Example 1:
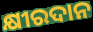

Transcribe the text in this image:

କ୍ଷୀରଦାନ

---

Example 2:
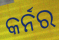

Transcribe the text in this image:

କର୍ନର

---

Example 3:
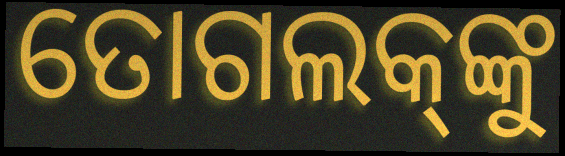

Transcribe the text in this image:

ତୋଗଲକ୍‌ଙ୍କୁ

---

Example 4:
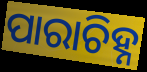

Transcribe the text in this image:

ପାରାଚିହ୍ନ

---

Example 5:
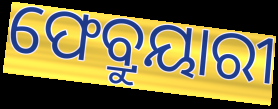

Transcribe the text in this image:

ଫେବ୍ରୁୟାରୀ